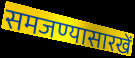
समजण्यासारखें